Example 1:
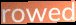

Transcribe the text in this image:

rowed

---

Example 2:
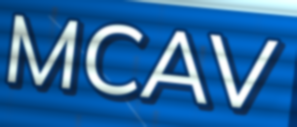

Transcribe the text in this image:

MCAV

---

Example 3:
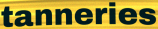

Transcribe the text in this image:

tanneries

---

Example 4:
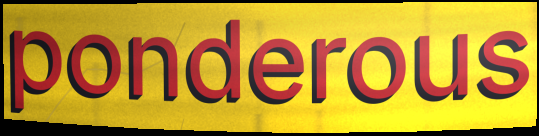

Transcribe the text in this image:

ponderous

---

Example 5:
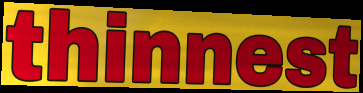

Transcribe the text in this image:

thinnest